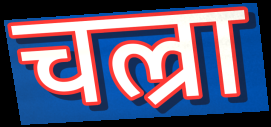
चल्रा